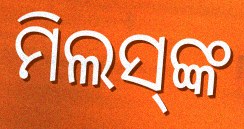
ମିଲସ୍‍ଙ୍କ